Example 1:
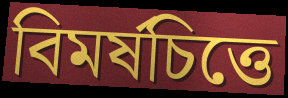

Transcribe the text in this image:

বিমর্ষচিত্তে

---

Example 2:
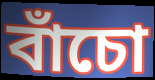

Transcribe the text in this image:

বাঁচো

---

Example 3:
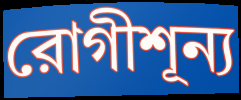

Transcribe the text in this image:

রোগীশূন্য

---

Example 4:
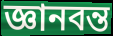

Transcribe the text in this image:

জ্ঞানবন্ত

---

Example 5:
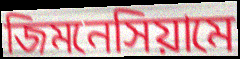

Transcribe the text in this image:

জিমনেসিয়ামে